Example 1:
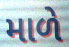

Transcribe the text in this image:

માળે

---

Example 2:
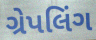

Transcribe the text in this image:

ગ્રેપલિંગ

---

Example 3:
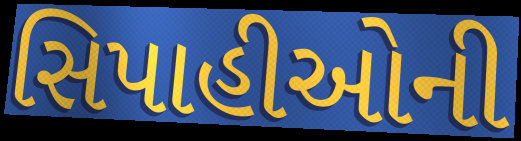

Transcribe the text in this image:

સિપાહીઓની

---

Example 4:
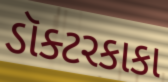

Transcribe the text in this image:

ડૉક્ટરકાકા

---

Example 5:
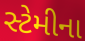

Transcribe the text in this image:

સ્ટેમીના